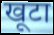
खूटा